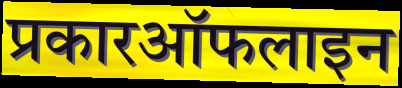
प्रकारऑफलाइन